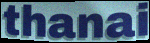
thanai